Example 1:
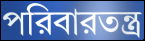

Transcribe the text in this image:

পরিবারতন্ত্র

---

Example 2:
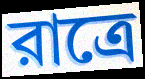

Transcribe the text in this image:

রাত্রে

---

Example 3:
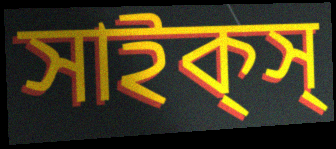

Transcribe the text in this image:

সাইক্‌স্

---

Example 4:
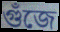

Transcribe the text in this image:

গুঁজে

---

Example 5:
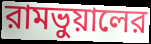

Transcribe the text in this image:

রামভুয়ালের